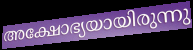
അക്ഷോഭ്യയായിരുന്നു